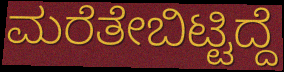
ಮರೆತೇಬಿಟ್ಟಿದ್ದೆ